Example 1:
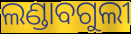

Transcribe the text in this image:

ଲଣ୍ଡାବଗୁଲୀ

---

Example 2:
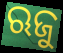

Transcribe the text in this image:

ଋଜୁ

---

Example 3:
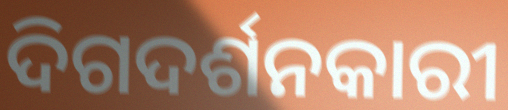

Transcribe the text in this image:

ଦିଗଦର୍ଶନକାରୀ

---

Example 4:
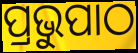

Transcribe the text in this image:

ପ୍ରଭୁପାଠ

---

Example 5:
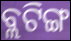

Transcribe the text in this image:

ବ୍ଲଟିଙ୍ଗ